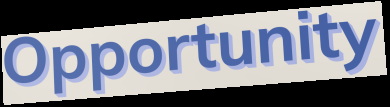
Opportunity